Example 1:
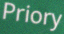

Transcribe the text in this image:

Priory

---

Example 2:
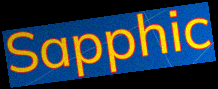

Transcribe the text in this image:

Sapphic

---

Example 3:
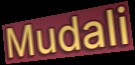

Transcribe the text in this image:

Mudali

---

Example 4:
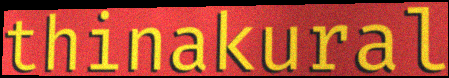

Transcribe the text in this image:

thinakural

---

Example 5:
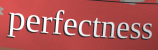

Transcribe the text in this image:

perfectness